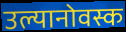
उल्यानोवस्क